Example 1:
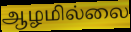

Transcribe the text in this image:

ஆழமில்லை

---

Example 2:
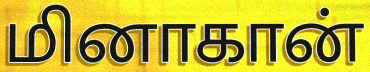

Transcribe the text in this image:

மினாகான்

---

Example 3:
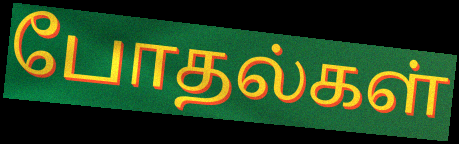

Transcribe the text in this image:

போதல்கள்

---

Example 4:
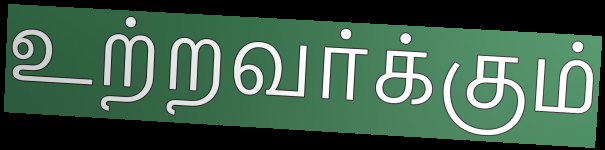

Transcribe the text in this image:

உற்றவர்க்கும்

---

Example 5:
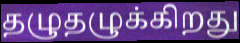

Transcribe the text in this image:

தழுதழுக்கிறது